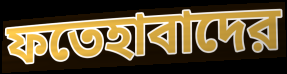
ফতেহাবাদের